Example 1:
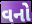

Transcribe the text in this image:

વનો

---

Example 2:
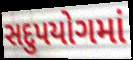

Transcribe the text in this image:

સદુપયોગમાં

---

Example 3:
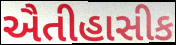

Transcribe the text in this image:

ઐતીહાસીક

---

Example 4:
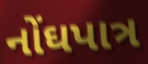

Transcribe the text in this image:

નોંઘપાત્ર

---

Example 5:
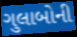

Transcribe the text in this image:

ગુલાબોની